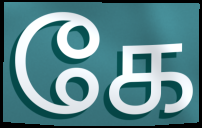
கே